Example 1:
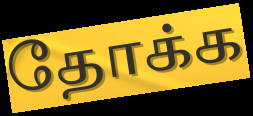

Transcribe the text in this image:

தோக்க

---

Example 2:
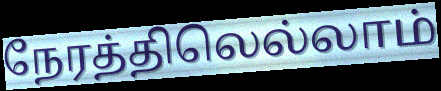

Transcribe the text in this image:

நேரத்திலெல்லாம்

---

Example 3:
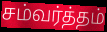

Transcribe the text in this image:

சம்வர்த்தம்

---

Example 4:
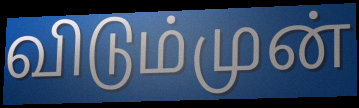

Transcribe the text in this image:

விடும்முன்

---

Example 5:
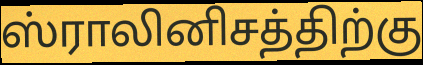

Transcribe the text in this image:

ஸ்ராலினிசத்திற்கு